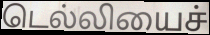
டெல்லியைச்